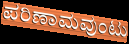
ಪರಿಣಾಮವುಂಟು